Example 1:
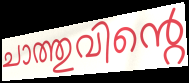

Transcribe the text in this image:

ചാത്തുവിന്റെ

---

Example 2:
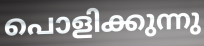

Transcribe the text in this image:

പൊളിക്കുന്നു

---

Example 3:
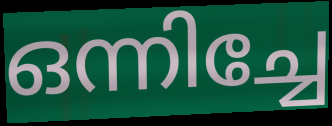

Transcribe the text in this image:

ഒന്നിച്ചേ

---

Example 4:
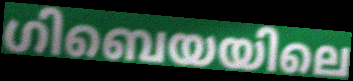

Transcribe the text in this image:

ഗിബെയയിലെ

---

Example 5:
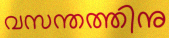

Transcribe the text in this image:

വസന്തത്തിനു